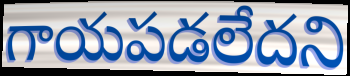
గాయపడలేదని